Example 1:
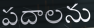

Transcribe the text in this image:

పదాలను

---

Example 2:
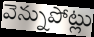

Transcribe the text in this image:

వెన్నుపోట్లు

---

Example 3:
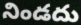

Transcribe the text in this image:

నిండదు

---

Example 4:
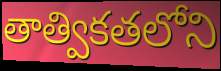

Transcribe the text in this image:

తాత్వికతలోని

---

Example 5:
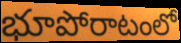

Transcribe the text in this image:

భూపోరాటంలో